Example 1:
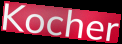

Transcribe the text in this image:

Kocher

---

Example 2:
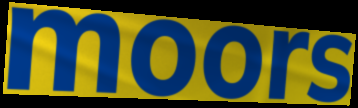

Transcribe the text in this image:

moors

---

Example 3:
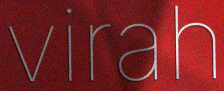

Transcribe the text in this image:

virah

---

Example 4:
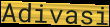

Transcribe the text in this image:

Adivasi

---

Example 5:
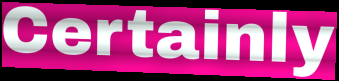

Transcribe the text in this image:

Certainly